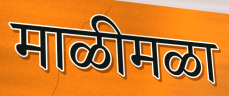
माळीमळा